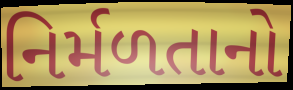
નિર્મળતાનો